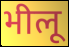
भीलू